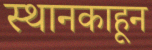
स्थानकाहून